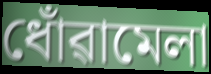
ধোঁৱামেলা